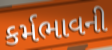
કર્મભાવની